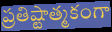
ప్రతిష్టాత్మకంగా